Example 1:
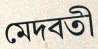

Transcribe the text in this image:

মেদবতী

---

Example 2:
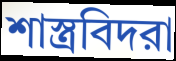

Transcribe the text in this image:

শাস্ত্রবিদরা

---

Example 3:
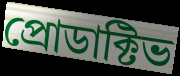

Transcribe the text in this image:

প্রোডাক্টিভ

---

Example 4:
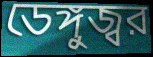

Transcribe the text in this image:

ডেঙ্গুজ্বর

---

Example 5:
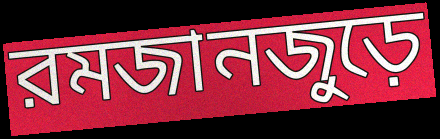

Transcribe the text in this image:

রমজানজুড়ে